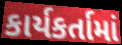
કાર્યકર્તામાં